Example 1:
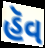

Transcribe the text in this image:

હૅવ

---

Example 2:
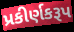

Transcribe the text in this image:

પ્રકીર્ણકરૂપ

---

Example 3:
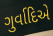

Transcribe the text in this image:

ગુર્વાદિએ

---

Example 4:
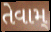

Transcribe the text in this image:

તેવામ્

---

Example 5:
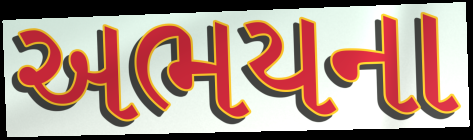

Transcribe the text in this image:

અભયના